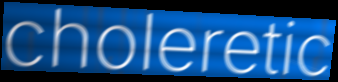
choleretic